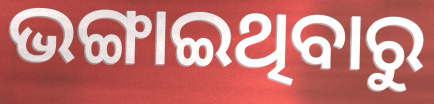
ଭଙ୍ଗାଇଥିବାରୁ